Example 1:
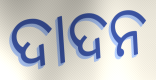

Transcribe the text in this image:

ଦାଦନ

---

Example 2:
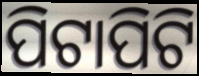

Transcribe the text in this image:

ପିଟାପିଟି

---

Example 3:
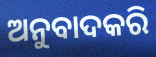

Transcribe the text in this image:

ଅନୁବାଦକରି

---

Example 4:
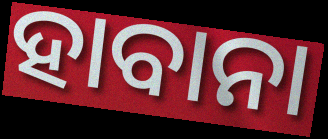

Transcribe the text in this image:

ହାବାନା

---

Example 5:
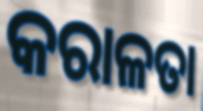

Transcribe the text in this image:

କରାଳତା